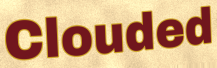
Clouded